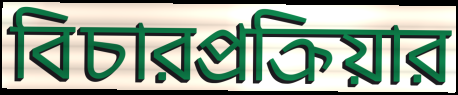
বিচারপ্রক্রিয়ার